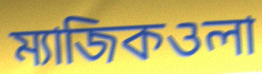
ম্যাজিকওলা